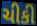
ચીકી